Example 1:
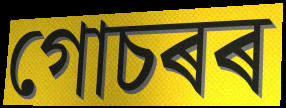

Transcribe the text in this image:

গোচৰৰ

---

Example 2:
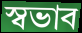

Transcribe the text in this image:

স্বভাব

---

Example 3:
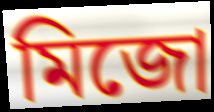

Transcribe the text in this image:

মিজো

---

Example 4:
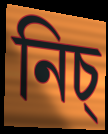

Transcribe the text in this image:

নিচ্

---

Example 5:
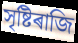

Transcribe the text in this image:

সৃষ্টিৰাজি